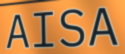
AISA